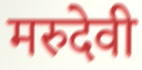
मरुदेवी